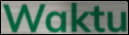
Waktu